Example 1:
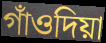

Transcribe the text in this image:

গাঁওদিয়া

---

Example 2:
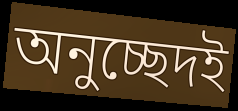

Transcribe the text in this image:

অনুচ্ছেদই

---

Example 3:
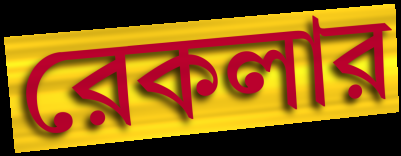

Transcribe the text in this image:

রেকলার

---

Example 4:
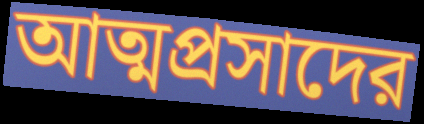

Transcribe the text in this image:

আত্মপ্রসাদের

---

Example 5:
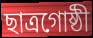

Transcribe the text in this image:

ছাত্রগোষ্ঠী